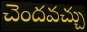
చెందవచ్చు